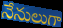
నేనులుగా